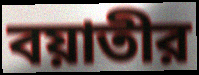
বয়াতীর